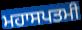
ਮਹਾਸਪਤਮੀ